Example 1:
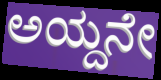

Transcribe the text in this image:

ಅಯ್ದನೇ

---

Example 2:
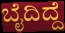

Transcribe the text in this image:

ಬೈದಿದ್ದೆ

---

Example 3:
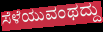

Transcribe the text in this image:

ಸೆಳೆಯುವಂಥದ್ದು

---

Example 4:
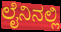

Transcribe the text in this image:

ಲೈನಿನಲ್ಲಿ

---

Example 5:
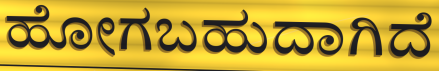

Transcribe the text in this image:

ಹೋಗಬಹುದಾಗಿದೆ